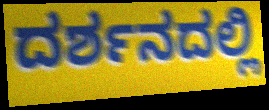
ದರ್ಶನದಲ್ಲಿ